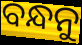
ବନ୍ଧନୁ